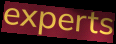
experts